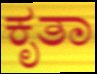
ಕೃತಾ